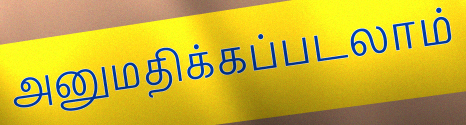
அனுமதிக்கப்படலாம்